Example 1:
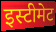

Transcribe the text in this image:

इस्टीमेट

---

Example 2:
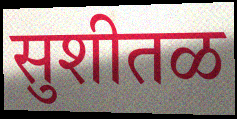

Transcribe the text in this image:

सुशीतळ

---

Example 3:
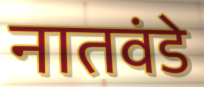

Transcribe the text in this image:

नातवंडे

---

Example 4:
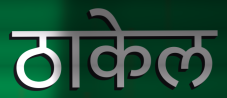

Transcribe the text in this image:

ठाकेल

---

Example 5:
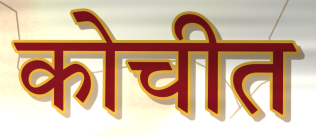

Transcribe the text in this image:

कोचीत